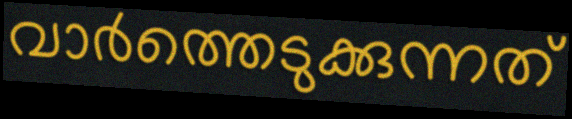
വാർത്തെടുക്കുന്നത്